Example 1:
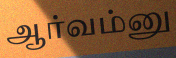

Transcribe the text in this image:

ஆர்வம்னு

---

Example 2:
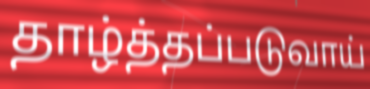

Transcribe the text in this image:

தாழ்த்தப்படுவாய்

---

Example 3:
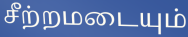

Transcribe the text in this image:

சீற்றமடையும்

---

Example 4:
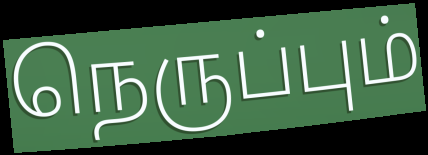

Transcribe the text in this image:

நெருப்பும்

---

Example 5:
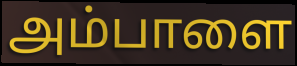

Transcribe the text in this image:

அம்பாளை